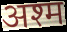
अश्म